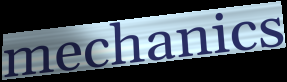
mechanics